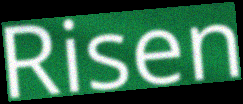
Risen